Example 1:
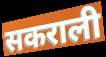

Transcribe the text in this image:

सकराली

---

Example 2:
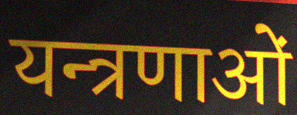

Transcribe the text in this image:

यन्त्रणाओं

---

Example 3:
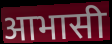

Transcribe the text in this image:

आभासी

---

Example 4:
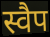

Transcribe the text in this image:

स्वैप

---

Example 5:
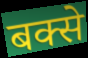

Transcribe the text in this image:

बक्से